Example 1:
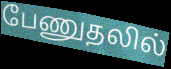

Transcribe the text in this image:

பேணுதலில்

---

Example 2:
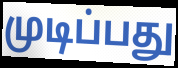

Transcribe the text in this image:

முடிப்பது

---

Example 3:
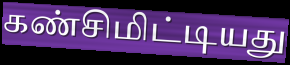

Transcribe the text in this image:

கண்சிமிட்டியது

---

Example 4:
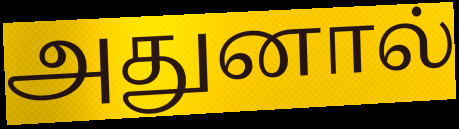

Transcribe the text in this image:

அதுனால்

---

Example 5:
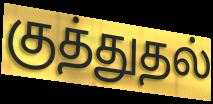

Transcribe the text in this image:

குத்துதல்